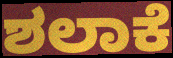
ಶಲಾಕೆ